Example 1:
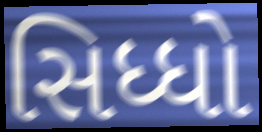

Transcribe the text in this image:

સિધ્ધો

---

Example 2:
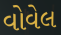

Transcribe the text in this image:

વોવેલ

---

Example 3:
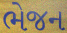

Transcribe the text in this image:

ભેજન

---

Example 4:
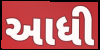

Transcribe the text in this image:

આધી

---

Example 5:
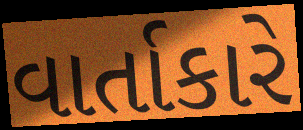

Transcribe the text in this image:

વાર્તાકારે